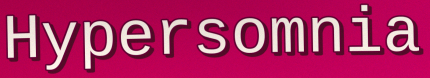
Hypersomnia